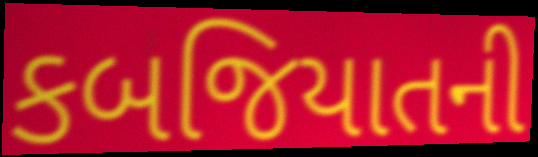
કબજિયાતની